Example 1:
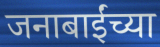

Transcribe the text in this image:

जनाबाईंच्या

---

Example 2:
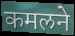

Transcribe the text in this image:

कमलने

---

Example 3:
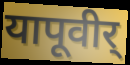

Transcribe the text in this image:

यापूवीर्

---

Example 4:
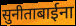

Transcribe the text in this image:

सुनीताबाईना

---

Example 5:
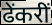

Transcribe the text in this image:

ढेंकरीं